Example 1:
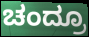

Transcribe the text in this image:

ಚಂದ್ರೂ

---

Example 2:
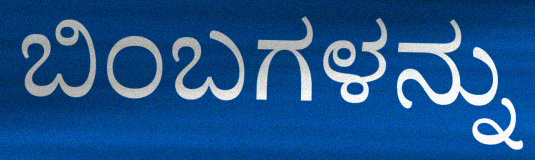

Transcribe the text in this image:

ಬಿಂಬಗಳನ್ನು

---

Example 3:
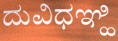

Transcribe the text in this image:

ದುವಿಧಞ್ಹಿ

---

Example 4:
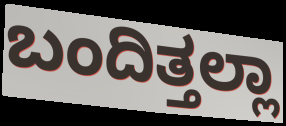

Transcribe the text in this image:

ಬಂದಿತ್ತಲ್ಲಾ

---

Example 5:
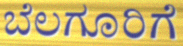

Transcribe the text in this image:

ಬೆಲಗೂರಿಗೆ